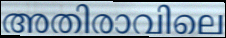
അതിരാവിലെ